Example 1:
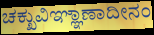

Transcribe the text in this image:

ಚಕ್ಖುವಿಞ್ಞಾಣಾದೀನಂ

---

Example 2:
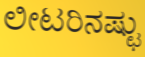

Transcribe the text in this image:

ಲೀಟರಿನಷ್ಟು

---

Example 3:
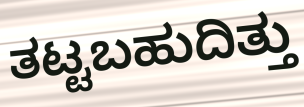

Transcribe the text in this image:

ತಟ್ಟಬಹುದಿತ್ತು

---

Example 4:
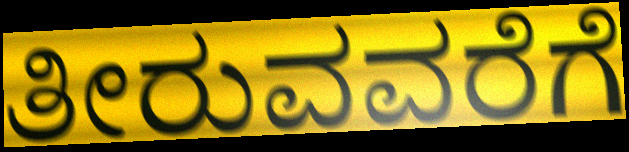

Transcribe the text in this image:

ತೀರುವವರೆಗೆ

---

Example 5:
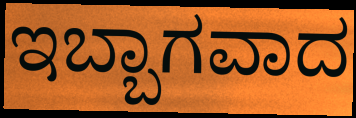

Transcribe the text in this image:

ಇಬ್ಬಾಗವಾದ